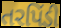
તરપિંડી